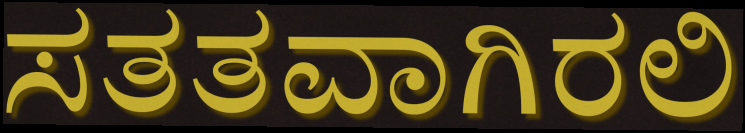
ಸತತವಾಗಿರಲಿ